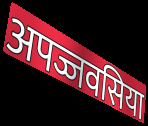
अपज्जवसिया